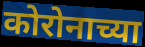
कोरोनाच्या